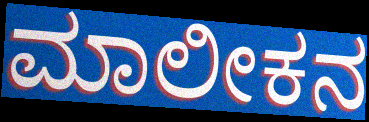
ಮಾಲೀಕನ